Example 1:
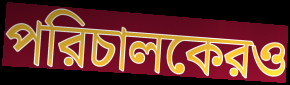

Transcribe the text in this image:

পরিচালকেরও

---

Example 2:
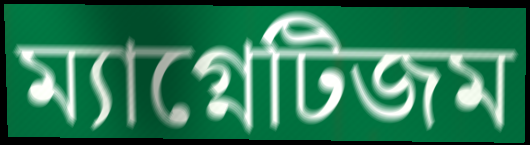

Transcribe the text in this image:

ম্যাগ্নেটিজম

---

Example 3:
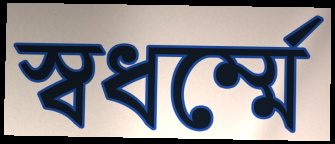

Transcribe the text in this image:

স্বধর্ম্মে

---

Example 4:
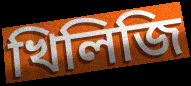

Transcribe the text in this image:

খিলিজি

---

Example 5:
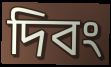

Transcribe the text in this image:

দিবং